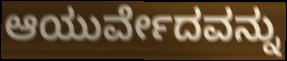
ಆಯುರ್ವೇದವನ್ನು